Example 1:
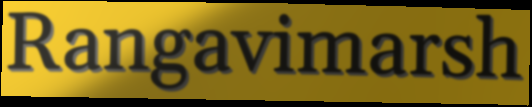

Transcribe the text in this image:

Rangavimarsh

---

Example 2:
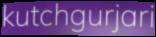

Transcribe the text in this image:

kutchgurjari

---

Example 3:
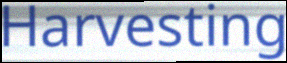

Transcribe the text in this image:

Harvesting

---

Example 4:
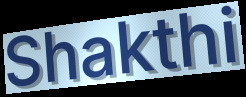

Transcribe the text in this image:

Shakthi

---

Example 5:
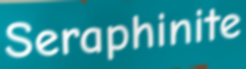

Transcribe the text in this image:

Seraphinite